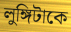
লুঙ্গিটাকে